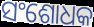
ସଂଶୋଧକ